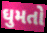
ઘુમતો